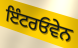
ਇੰਟਰਓਵੇਨ